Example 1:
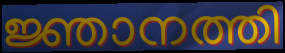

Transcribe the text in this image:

ജ്ഞാനത്തി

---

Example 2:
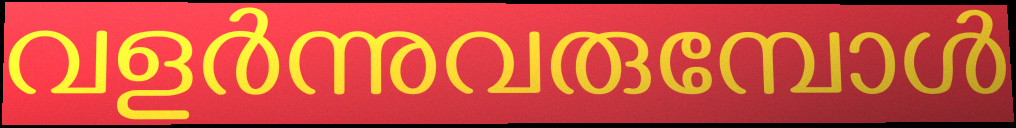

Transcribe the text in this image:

വളർന്നുവരുമ്പോൾ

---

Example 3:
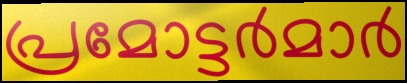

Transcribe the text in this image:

പ്രമോട്ടർമാർ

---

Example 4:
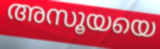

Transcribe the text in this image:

അസൂയയെ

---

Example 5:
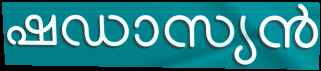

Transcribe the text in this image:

ഷഡാസ്യൻ